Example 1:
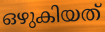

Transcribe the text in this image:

ഒഴുകിയത്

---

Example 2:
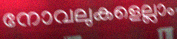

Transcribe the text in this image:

നോവലുകളെല്ലാം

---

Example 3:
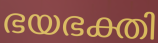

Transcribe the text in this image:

ഭയഭക്തി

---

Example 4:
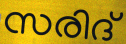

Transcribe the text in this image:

സരിദ്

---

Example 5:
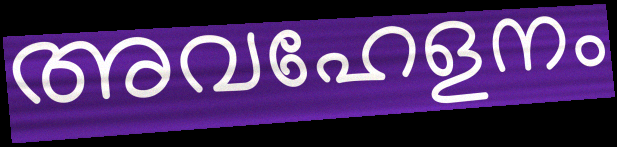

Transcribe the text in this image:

അവഹേളനം